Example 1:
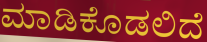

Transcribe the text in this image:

ಮಾಡಿಕೊಡಲಿದೆ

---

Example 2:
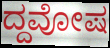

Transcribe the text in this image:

ದ್ದವೋಷ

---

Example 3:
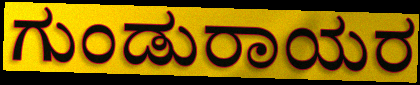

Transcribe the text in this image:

ಗುಂಡುರಾಯರ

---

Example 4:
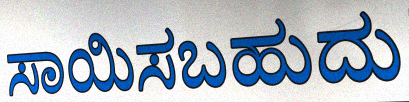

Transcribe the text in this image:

ಸಾಯಿಸಬಹುದು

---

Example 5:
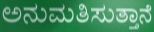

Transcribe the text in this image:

ಅನುಮತಿಸುತ್ತಾನೆ